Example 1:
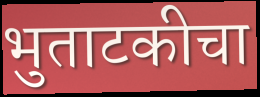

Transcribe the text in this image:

भुताटकीचा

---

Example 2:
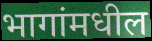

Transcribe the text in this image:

भागांमधील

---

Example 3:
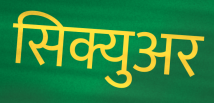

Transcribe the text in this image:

सिक्युअर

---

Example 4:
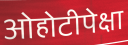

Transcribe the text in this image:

ओहोटीपेक्षा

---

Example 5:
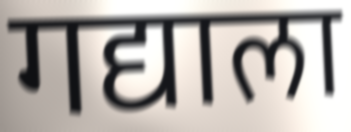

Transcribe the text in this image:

गद्याला